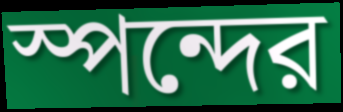
স্পন্দের